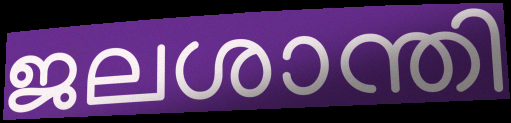
ജലശാന്തി